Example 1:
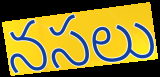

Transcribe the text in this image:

నసలు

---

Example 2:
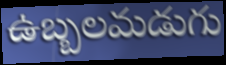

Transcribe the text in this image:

ఉబ్బలమడుగు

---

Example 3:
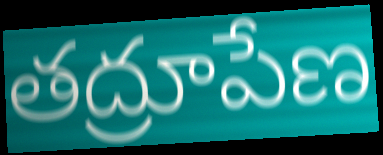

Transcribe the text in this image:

తద్రూపేణ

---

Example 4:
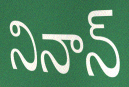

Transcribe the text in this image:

నినాన్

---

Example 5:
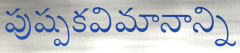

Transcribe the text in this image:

పుష్పకవిమానాన్ని